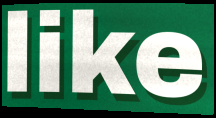
like